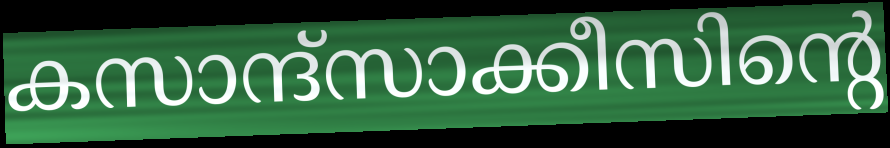
കസാന്ദ്സാക്കീസിന്റെ